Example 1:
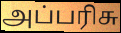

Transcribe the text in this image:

அப்பரிசு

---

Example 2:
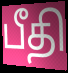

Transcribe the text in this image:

பீதி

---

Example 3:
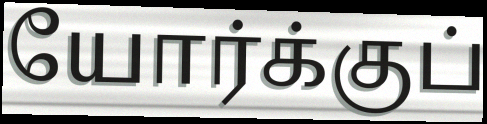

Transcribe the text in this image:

யோர்க்குப்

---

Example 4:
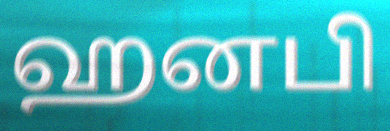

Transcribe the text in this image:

ஹனபி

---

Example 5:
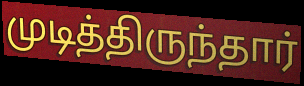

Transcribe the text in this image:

முடித்திருந்தார்